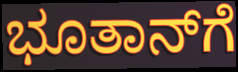
ಭೂತಾನ್‌ಗೆ